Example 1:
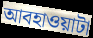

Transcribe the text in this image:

আবহাওয়াটা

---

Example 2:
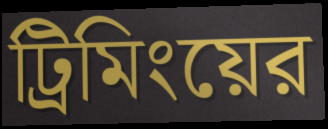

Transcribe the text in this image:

ট্রিমিংয়ের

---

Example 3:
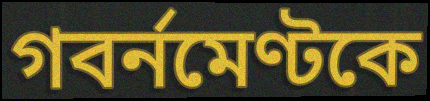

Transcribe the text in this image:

গবর্নমেণ্টকে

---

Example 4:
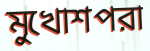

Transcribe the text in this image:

মুখোশপরা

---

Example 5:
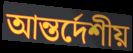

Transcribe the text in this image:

আন্তর্দেশীয়